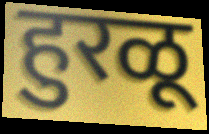
हुरळू